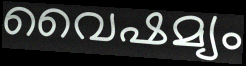
വൈഷമ്യം